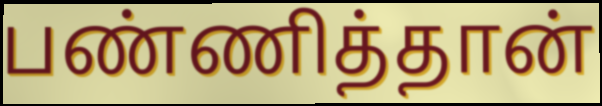
பண்ணித்தான்